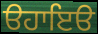
ੳਹਾਇੳ